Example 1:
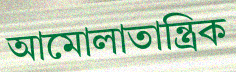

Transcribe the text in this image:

আমোলাতান্ত্ৰিক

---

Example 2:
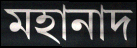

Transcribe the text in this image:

মহানাদ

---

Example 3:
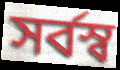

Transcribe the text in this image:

সৰ্বস্ব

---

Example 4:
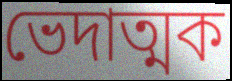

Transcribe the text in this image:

ভেদাত্মক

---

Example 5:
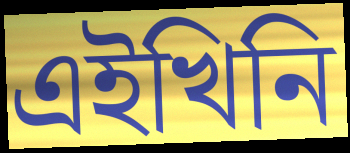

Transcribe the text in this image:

এইখিনি